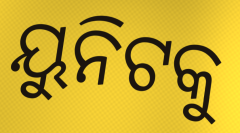
ୟୁନିଟକୁ